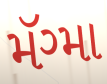
મૅગ્મા